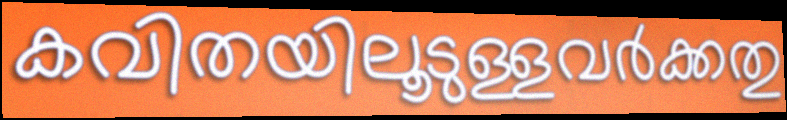
കവിതയിലൂടുള്ളവർക്കതു